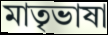
মাতৃভাষা